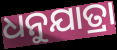
ଧନୁଯାତ୍ରା